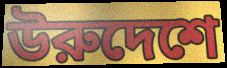
উরুদেশে